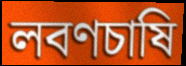
লবণচাষি